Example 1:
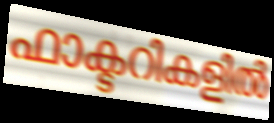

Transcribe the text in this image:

ഫാക്ടറികളിൽ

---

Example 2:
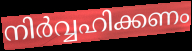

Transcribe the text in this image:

നിർവ്വഹിക്കണം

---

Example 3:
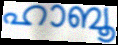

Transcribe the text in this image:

ഹാബൂ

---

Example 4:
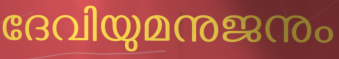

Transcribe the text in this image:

ദേവിയുമനുജനും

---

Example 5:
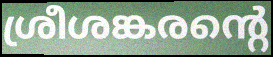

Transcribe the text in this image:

ശ്രീശങ്കരന്റെ